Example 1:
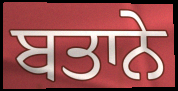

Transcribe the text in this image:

ਬਤਾਨੇ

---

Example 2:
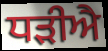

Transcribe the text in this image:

ਧੜੀਐ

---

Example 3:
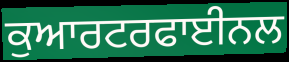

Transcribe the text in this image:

ਕੁਆਰਟਰਫਾਈਨਲ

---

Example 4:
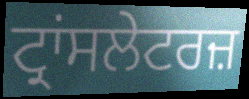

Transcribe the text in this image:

ਟ੍ਰਾਂਸਲੇਟਰਜ਼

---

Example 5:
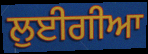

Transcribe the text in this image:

ਲੁਈਗੀਆ